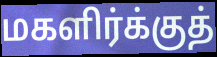
மகளிர்க்குத்